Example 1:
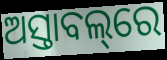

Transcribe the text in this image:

ଅସ୍ତାବଲ୍‌ରେ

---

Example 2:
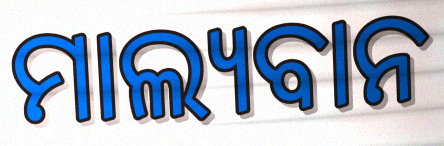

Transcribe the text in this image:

ମାଲ୍ୟବାନ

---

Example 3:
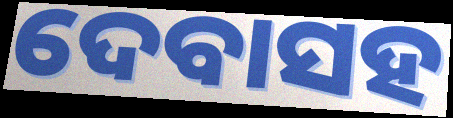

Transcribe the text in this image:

ଦେବାସହ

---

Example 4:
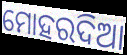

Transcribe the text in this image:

ମୋହରଦିଆ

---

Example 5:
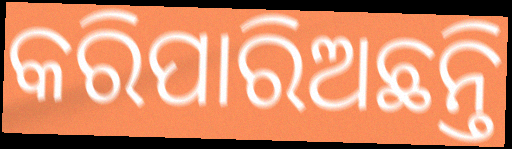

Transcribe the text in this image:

କରିପାରିଅଛନ୍ତି